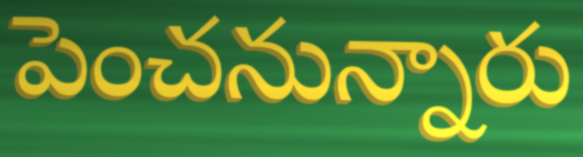
పెంచనున్నారు